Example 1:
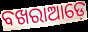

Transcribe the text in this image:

ବଖରାଆଡ଼େ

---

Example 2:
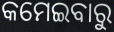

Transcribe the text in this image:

କମେଇବାରୁ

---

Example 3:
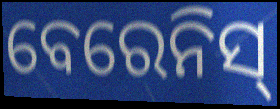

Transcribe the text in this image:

ବେରେନିସ୍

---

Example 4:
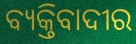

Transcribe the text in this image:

ବ୍ୟକ୍ତିବାଦୀର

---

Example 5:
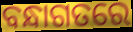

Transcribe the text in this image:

ବନ୍ଧାଗତରେ